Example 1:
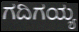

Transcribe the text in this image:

ಗದಿಗಯ್ಯ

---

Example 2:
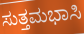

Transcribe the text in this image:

ಸುತ್ತಮಭಾಸಿ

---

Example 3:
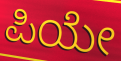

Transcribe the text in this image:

ಪಿಯೇ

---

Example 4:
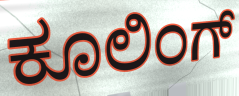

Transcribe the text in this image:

ಕೂಲಿಂಗ್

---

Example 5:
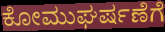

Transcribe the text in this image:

ಕೋಮುಘರ್ಷಣೆಗೆ